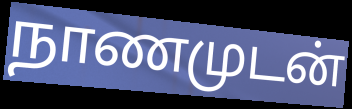
நாணமுடன்